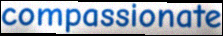
compassionate